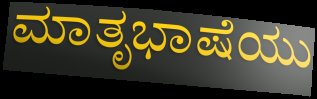
ಮಾತೃಭಾಷೆಯು